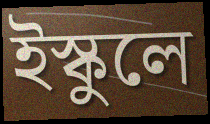
ইস্কুলে